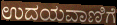
ಉದಯವಾಣಿಗೆ